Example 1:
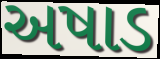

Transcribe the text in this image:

અષાડ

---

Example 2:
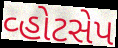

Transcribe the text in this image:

વ્હોટસેપ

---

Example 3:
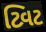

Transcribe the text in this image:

ટ્વિટ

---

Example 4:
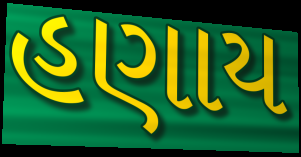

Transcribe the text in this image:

હણાય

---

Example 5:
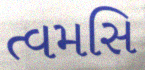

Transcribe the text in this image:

ત્વમસિ